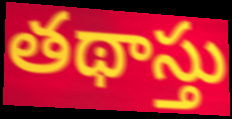
తథాస్తు